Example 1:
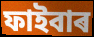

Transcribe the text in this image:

ফাইবাৰ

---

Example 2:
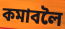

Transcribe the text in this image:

কমাবলৈ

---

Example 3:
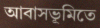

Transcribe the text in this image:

আবাসভূমিতে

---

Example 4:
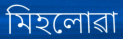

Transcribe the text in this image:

মিহলোৱা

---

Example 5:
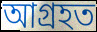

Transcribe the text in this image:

আগ্ৰহত